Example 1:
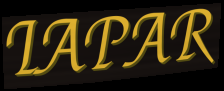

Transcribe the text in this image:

IAPAR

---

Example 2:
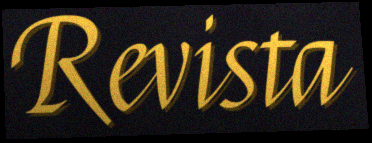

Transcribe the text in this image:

Revista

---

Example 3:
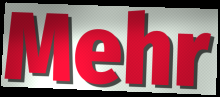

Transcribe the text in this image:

Mehr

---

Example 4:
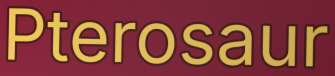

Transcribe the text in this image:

Pterosaur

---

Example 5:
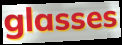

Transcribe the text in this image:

glasses